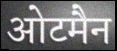
ओटमैन